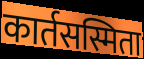
कार्तसस्मिता